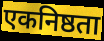
एकनिष्ठता